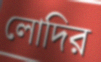
লোদির